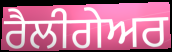
ਰੈਲੀਗੇਅਰ